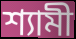
শ্যামী